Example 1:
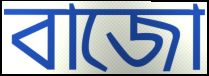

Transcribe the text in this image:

বাজো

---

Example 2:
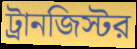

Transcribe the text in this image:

ট্রানজিস্টর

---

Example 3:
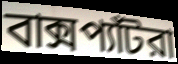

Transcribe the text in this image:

বাক্সপ্যাঁটরা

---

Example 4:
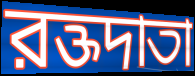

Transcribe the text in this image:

রক্তদাতা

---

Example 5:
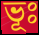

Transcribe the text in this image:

ভূঃ